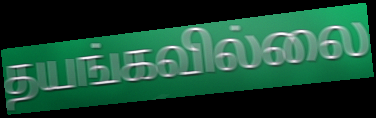
தயங்கவில்லை